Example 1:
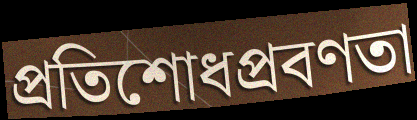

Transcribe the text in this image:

প্রতিশোধপ্রবণতা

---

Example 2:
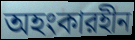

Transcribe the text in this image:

অহংকারহীন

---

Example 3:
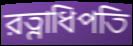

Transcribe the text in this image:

রত্নাধিপতি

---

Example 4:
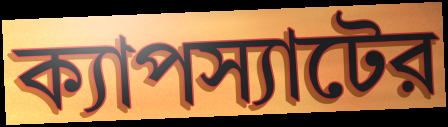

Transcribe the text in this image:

ক্যাপস্যাটের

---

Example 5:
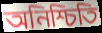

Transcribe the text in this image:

অনিশ্চিতি